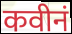
कवीनं